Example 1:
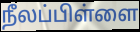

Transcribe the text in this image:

நீலப்பிள்ளை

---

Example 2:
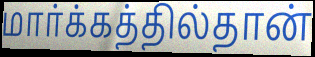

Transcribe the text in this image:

மார்க்கத்தில்தான்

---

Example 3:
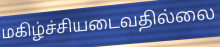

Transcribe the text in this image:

மகிழ்ச்சியடைவதில்லை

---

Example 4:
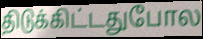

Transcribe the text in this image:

திடுக்கிட்டதுபோல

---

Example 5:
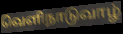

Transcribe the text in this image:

வெளிநாடுவாழ்